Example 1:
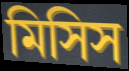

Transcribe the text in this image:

মিসিস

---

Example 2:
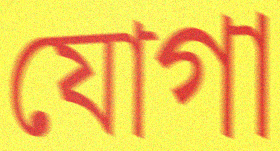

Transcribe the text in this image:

যোগা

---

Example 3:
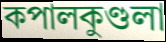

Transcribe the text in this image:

কপালকুণ্ডলা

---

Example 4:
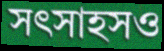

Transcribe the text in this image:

সৎসাহসও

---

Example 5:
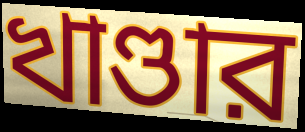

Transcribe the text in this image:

খাণ্ডার